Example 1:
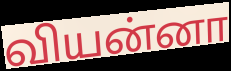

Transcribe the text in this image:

வியன்னா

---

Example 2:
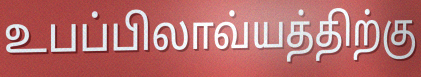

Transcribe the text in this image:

உபப்பிலாவ்யத்திற்கு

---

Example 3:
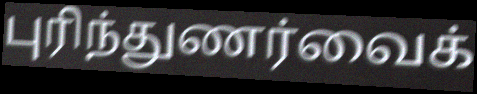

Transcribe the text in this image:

புரிந்துணர்வைக்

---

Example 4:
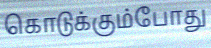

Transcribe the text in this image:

கொடுக்கும்போது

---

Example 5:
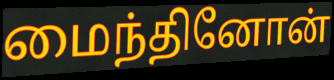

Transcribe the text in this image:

மைந்தினோன்